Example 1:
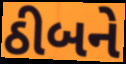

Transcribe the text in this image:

ઠીબને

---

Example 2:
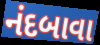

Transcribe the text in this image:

નંદબાવા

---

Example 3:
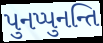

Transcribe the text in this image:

પુનપ્પુનન્તિ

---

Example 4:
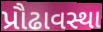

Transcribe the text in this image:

પ્રૌઢાવસ્થા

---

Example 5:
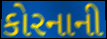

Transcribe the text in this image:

કોરનાની